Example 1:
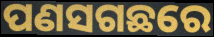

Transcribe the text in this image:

ପଣସଗଛରେ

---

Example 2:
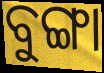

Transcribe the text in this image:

ବୁଙ୍ଗା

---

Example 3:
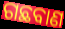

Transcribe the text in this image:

ଗଛବାଣ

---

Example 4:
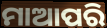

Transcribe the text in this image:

ମାଆପରି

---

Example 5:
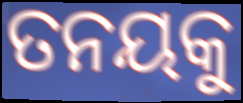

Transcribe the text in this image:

ତନୟକୁ